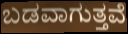
ಬಡವಾಗುತ್ತವೆ